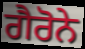
ਗੈਰੋਨੇ